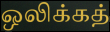
ஒலிக்கத்